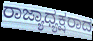
ರಾಜ್ಯಾಧ್ಯಕ್ಷರಾದ